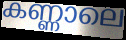
കണ്ണാലെ